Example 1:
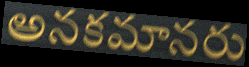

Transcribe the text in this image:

అనకమానరు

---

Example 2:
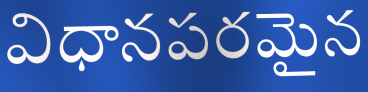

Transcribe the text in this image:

విధానపరమైన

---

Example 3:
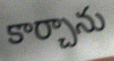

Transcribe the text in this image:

కార్చాను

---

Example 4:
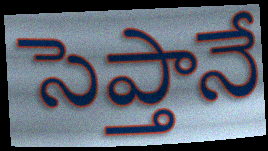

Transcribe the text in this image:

సెప్తానే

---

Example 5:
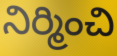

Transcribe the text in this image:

నిర్మించి